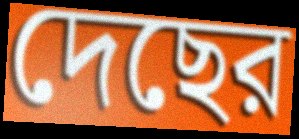
দেছের